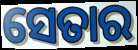
ସେତାର